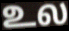
உல